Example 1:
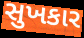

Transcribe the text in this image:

સુખકાર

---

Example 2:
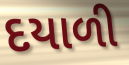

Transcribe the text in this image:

દયાળી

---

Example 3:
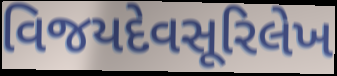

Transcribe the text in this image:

વિજયદેવસૂરિલેખ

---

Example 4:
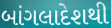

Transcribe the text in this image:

બાંગલાદેશથી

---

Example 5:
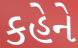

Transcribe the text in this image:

કહેને